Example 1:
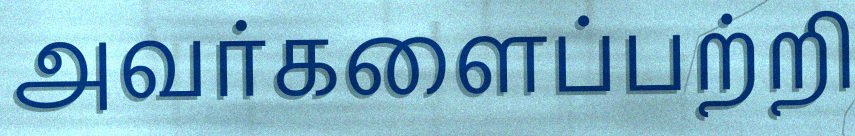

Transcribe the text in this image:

அவர்களைப்பற்றி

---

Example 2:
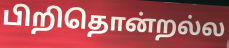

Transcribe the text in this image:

பிறிதொன்றல்ல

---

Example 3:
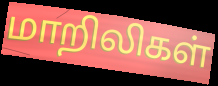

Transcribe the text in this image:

மாறிலிகள்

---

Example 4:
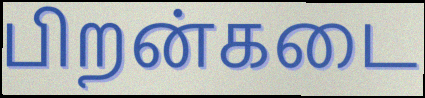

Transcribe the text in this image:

பிறன்கடை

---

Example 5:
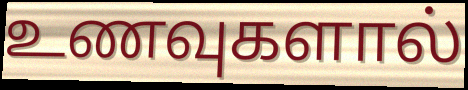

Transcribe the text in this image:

உணவுகளால்